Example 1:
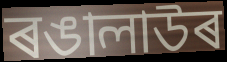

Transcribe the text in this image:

ৰঙালাউৰ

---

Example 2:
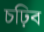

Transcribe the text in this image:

চঢ়িব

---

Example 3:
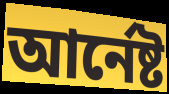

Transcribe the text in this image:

আৰ্নেষ্ট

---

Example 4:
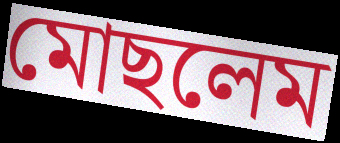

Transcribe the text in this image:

মোছলেম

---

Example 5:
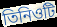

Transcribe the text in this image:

তিনিওটি